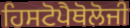
ਹਿਸਟੋਪੈਥੋਲੋਜੀ